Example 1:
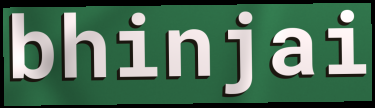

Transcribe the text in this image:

bhinjai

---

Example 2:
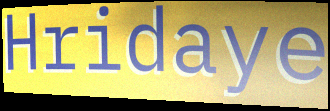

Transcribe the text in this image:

Hridaye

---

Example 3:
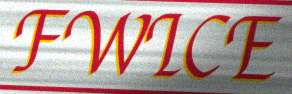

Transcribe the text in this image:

FWICE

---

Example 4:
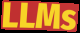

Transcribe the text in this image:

LLMs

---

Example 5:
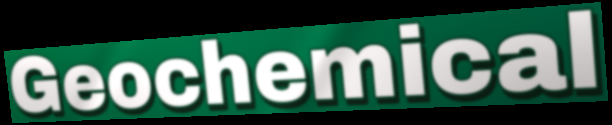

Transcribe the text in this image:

Geochemical